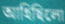
আহিছিলো